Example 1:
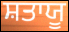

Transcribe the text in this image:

ਸ਼ਤਾਯੂ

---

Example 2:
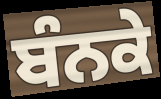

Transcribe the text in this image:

ਬੰਨਕੇ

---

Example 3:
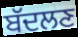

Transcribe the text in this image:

ਬੱਦਲਣ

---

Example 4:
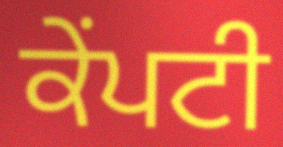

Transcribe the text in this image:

ਕੇਂਪਟੀ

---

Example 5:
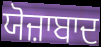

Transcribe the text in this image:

ਯੋਜ਼ਾਬਾਦ